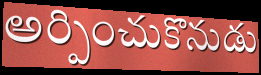
అర్పించుకొనుడు